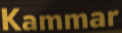
Kammar